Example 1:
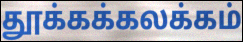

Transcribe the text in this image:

தூக்கக்கலக்கம்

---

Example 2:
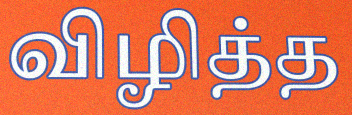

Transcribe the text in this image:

விழித்த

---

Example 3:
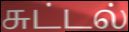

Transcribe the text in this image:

சுட்டல்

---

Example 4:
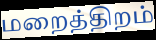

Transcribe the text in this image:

மறைத்திறம்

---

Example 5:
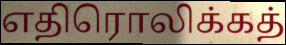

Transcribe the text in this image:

எதிரொலிக்கத்